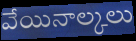
వేయినాల్కలు